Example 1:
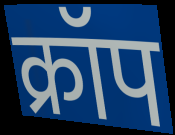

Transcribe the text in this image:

क्रॉप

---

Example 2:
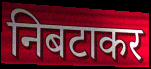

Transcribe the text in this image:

निबटाकर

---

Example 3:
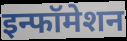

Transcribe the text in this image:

इन्फॉमेशन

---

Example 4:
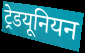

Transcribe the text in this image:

ट्रेडयूनियन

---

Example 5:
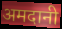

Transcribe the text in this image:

अमदानी